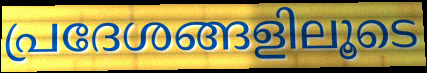
പ്രദേശങ്ങളിലൂടെ